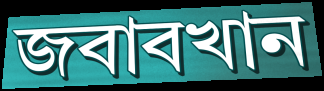
জবাবখান